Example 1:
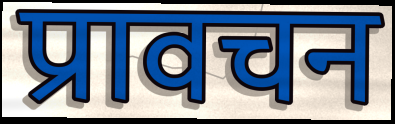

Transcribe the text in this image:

प्रावचन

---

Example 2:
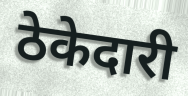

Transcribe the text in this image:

ठेकेदारी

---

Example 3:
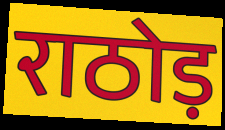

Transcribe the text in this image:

राठोड़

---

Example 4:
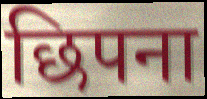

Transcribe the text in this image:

छिपना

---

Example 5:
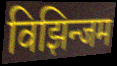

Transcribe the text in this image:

विझिन्जम